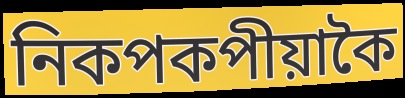
নিকপকপীয়াকৈ